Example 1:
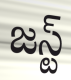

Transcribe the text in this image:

జస్ట్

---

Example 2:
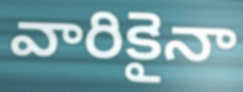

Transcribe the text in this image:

వారికైనా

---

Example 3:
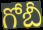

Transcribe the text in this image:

గోబీ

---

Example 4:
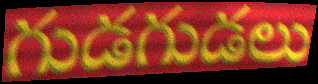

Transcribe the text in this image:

గుడగుడలు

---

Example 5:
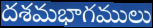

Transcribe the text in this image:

దశమభాగములు